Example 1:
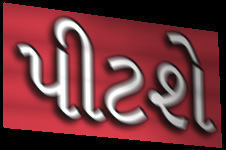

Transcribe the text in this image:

પીટશે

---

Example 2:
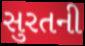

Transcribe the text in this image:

સુરતની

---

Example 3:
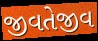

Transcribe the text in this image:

જીવતેજીવ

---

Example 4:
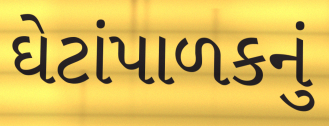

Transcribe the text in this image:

ઘેટાંપાળકનું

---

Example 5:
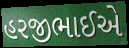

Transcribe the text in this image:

હરજીભાઈએ